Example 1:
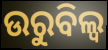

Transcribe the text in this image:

ଉରୁବିଲ୍ୱ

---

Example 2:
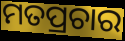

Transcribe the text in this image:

ମତପ୍ରଚାର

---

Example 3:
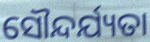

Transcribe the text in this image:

ସୌନ୍ଦର୍ଯ୍ୟତା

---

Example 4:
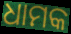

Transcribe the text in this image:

ଧାମକ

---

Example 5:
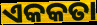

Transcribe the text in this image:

ଏକକତା